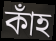
কাঁহ